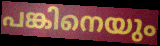
പങ്കിനെയും